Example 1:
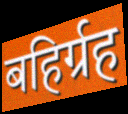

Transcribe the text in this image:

बहिर्ग्रह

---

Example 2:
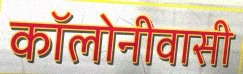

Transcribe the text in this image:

कॉलोनीवासी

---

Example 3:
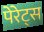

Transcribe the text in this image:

पेरेट्स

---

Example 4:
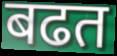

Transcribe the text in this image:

बढत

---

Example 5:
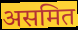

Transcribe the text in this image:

असमित